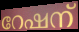
റേഷന്